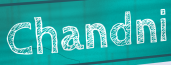
Chandni